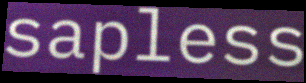
sapless